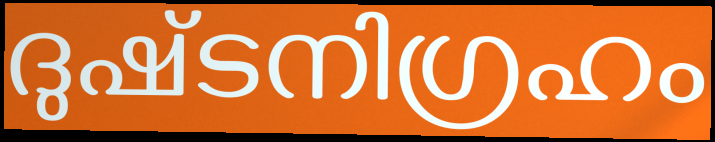
ദുഷ്‌ടനിഗ്രഹം